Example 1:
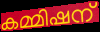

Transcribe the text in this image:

കമ്മിഷന്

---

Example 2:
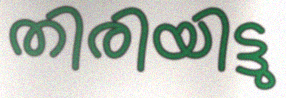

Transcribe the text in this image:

തിരിയിട്ടു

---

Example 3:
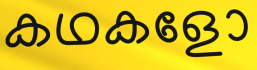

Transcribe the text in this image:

കഥകളോ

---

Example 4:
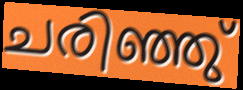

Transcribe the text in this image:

ചരിഞ്ഞു്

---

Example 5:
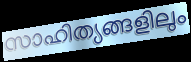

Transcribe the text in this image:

സാഹിത്യങ്ങളിലും